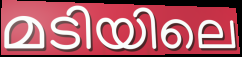
മടിയിലെ